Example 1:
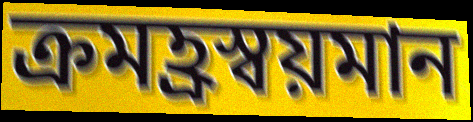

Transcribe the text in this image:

ক্রমহ্রস্বয়মান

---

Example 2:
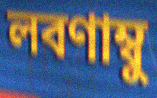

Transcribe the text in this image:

লবণাম্বু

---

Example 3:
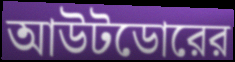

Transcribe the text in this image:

আউটডোরের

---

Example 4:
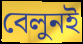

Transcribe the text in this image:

বেলুনই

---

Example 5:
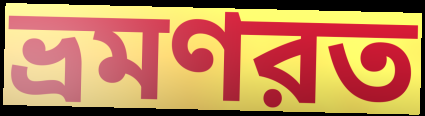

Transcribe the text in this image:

ভ্রমণরত